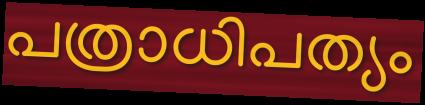
പത്രാധിപത്യം